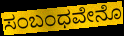
ಸಂಬಂಧವೇನೊ